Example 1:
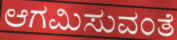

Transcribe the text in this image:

ಆಗಮಿಸುವಂತೆ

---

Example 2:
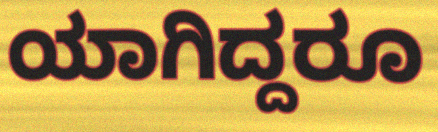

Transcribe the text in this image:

ಯಾಗಿದ್ದರೂ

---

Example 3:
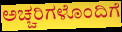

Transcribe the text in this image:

ಅಚ್ಚರಿಗಳೊಂದಿಗೆ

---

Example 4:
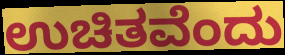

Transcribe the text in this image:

ಉಚಿತವೆಂದು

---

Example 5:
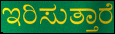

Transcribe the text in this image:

ಇರಿಸುತ್ತಾರೆ